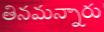
తినమన్నారు